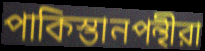
পাকিস্তানপন্থীরা